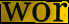
wor